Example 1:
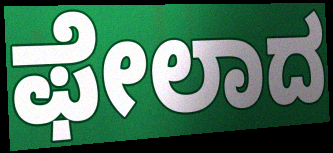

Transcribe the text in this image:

ಫೇಲಾದ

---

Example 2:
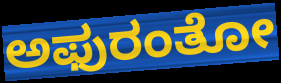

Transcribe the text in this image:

ಅಫುರಂತೋ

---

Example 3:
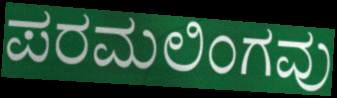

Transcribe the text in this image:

ಪರಮಲಿಂಗವು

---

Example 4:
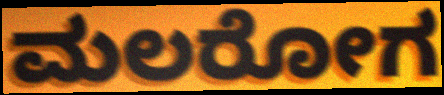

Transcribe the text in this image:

ಮಲರೋಗ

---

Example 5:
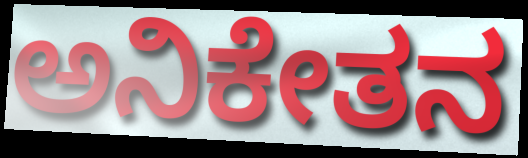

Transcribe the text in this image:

ಅನಿಕೇತನ